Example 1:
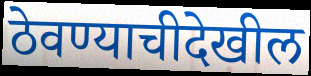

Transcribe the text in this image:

ठेवण्याचीदेखील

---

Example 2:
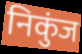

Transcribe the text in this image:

निकुंज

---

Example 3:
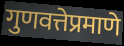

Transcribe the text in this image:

गुणवत्तेप्रमाणे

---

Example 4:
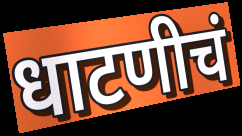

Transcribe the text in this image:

धाटणीचं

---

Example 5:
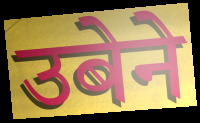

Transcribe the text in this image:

उबेने